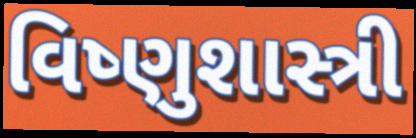
વિષ્ણુશાસ્ત્રી